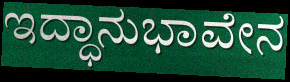
ಇದ್ಧಾನುಭಾವೇನ